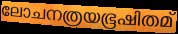
ലോചനത്രയഭൂഷിതമ്